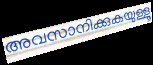
അവസാനിക്കുകയുള്ളൂ